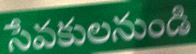
సేవకులనుండి